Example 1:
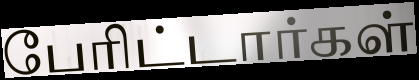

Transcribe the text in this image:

பேரிட்டார்கள்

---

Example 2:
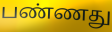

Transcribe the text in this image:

பண்ணது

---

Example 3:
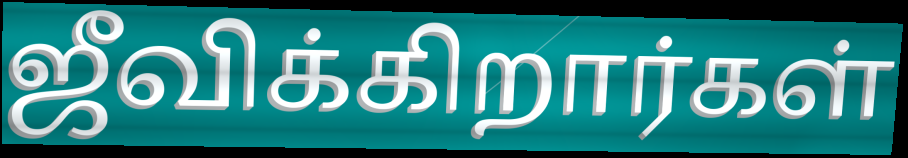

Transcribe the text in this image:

ஜீவிக்கிறார்கள்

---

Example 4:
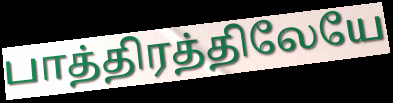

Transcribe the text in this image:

பாத்திரத்திலேயே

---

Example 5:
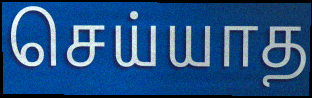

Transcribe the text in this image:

செய்யாத